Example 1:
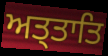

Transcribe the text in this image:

ਅਤ੍ਤਾਤਿ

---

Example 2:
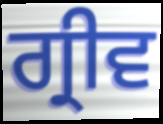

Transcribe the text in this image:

ਗ੍ਰੀਵ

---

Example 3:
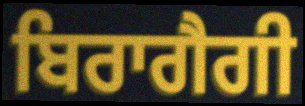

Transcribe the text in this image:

ਬਿਰਾਗੈਗੀ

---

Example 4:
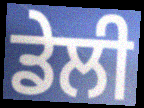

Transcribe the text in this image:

ਡੇਲੀ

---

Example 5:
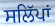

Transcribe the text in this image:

ਸਲਿੱਪਾਂ